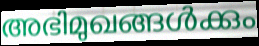
അഭിമുഖങ്ങൾക്കും